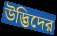
উদ্ভিদের